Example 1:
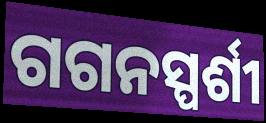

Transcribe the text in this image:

ଗଗନସ୍ପର୍ଶୀ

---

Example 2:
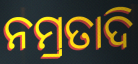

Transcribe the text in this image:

ନମ୍ରତାଦି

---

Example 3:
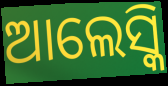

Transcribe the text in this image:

ଆଲେସ୍କି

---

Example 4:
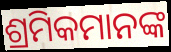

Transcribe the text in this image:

ଶ୍ରମିକମାନଙ୍କ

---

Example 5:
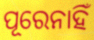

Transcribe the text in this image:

ପୂରେନାହିଁ